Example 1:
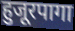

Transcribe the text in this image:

हुजूरपागा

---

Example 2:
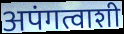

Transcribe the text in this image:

अपंगत्वाशी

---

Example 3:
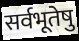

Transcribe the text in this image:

सर्वभूतेषु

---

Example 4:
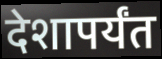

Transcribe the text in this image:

देशापर्यंत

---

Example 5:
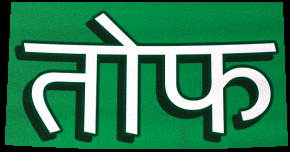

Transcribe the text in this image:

तोफ